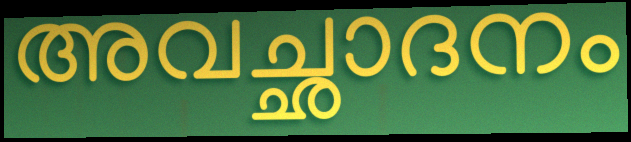
അവച്ഛാദനം